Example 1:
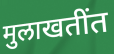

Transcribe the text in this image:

मुलाखतींत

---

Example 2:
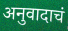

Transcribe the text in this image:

अनुवादाचं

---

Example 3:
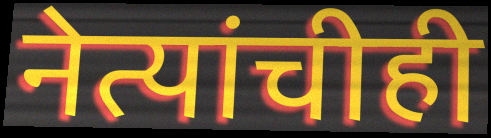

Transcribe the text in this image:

नेत्यांचीही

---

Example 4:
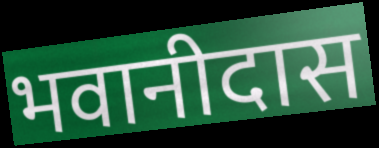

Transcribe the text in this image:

भवानीदास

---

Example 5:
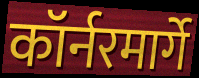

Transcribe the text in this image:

कॉर्नरमार्गे